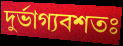
দুৰ্ভাগ্যবশতঃ